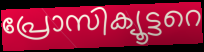
പ്രോസിക്യൂട്ടറെ